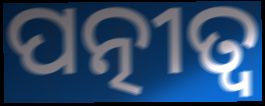
ପତ୍ନୀତ୍ୱ